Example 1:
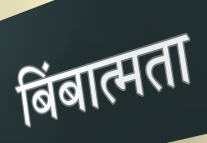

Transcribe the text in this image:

बिंबात्मता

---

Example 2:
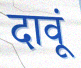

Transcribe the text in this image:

दावूं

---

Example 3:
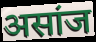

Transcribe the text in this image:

असांज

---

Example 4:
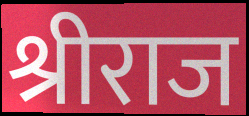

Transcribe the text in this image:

श्रीराज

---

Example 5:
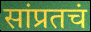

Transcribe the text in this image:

सांप्रतचं